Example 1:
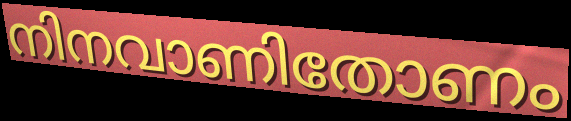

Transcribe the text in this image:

നിനവാണിതോണം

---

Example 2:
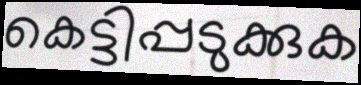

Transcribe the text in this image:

കെട്ടിപ്പടുക്കുക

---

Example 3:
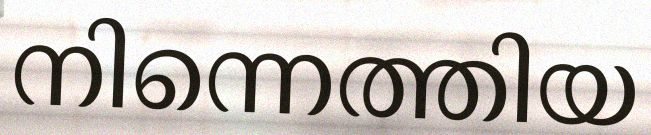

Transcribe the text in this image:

നിന്നെത്തിയ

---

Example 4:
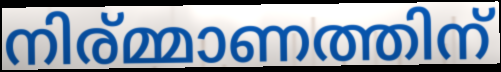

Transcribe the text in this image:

നിര്മ്മാണത്തിന്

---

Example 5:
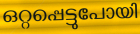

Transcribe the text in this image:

ഒറ്റപ്പെട്ടുപോയി